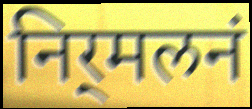
निर्मलनं